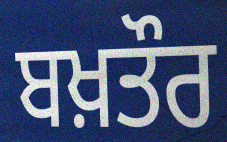
ਬਖ਼ਤੌਰ